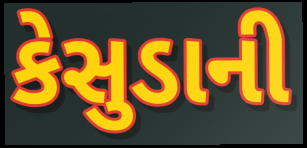
કેસુડાની